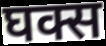
घक्स